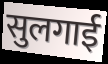
सुलगाई